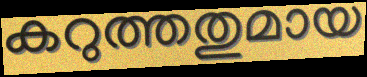
കറുത്തതുമായ